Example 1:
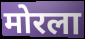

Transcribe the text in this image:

मोरला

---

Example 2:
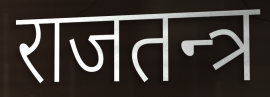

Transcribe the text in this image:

राजतन्त्र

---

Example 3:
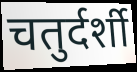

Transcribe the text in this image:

चतुर्दर्शी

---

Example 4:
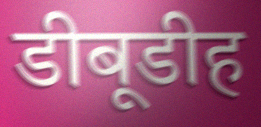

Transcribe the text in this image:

डीबूडीह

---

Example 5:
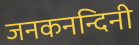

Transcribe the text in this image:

जनकनन्दिनी